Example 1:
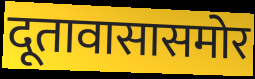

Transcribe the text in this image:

दूतावासासमोर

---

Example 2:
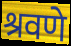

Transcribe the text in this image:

श्रवणे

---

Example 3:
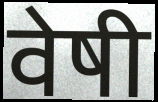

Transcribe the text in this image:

वेषी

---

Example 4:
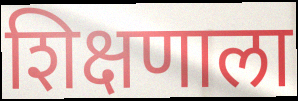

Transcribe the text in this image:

शिक्षणाला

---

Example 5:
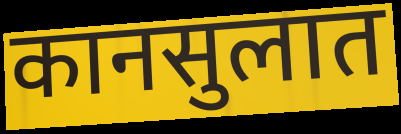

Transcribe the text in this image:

कानसुलात